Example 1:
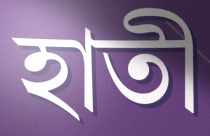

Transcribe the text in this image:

হাতী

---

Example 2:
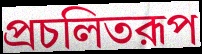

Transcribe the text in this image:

প্রচলিতরূপ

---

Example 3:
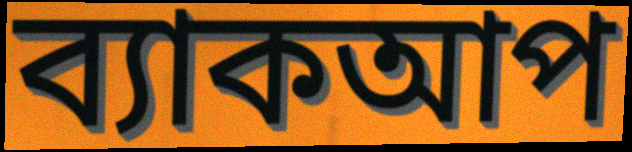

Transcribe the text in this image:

ব্যাকআপ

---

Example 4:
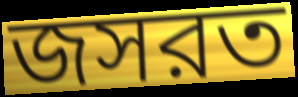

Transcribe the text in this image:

জসরত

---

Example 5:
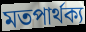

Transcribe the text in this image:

মতপার্থক্য